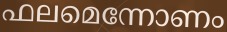
ഫലമെന്നോണം